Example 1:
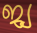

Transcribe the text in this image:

ജ്യ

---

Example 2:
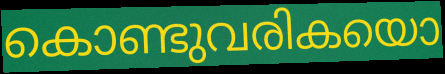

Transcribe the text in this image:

കൊണ്ടുവരികയൊ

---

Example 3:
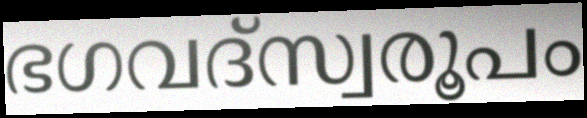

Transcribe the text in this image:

ഭഗവദ്സ്വരൂപം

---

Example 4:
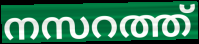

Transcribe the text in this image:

നസറത്ത്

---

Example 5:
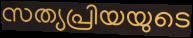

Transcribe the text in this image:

സത്യപ്രിയയുടെ